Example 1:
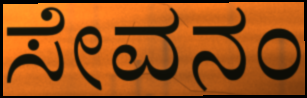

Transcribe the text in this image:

ಸೇವನಂ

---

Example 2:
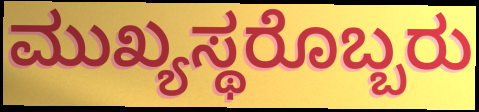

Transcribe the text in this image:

ಮುಖ್ಯಸ್ಥರೊಬ್ಬರು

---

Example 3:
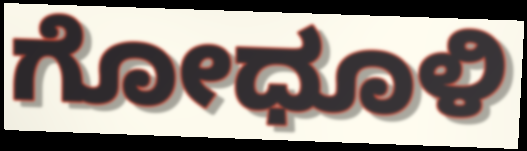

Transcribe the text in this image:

ಗೋಧೂಳಿ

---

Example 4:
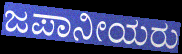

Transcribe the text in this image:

ಜಪಾನೀಯರು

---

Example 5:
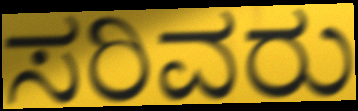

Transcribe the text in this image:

ಸರಿವರು